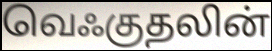
வெஃகுதலின்